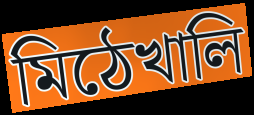
মিঠেখালি